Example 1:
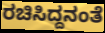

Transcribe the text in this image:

ರಚಿಸಿದ್ದನಂತೆ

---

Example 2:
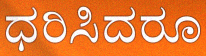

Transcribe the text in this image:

ಧರಿಸಿದರೂ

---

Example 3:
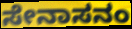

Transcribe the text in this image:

ಸೇನಾಸನಂ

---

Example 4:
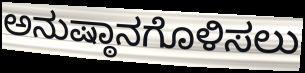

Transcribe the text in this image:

ಅನುಷ್ಠಾನಗೊಳಿಸಲು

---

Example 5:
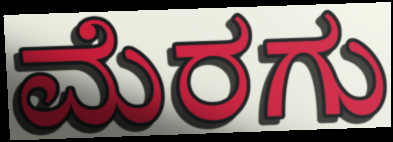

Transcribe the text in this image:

ಮೆರಗು